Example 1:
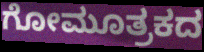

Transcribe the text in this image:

ಗೋಮೂತ್ರಕದ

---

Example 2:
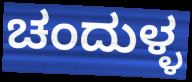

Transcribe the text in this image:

ಚಂದುಳ್ಳ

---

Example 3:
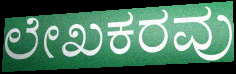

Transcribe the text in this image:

ಲೇಖಕರವು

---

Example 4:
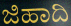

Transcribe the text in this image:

ಜಿಹಾದಿ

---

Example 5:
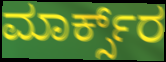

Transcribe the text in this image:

ಮಾರ್ಕ್ಸ್‌ರ